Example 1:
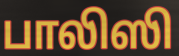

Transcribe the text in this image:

பாலிஸி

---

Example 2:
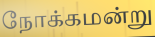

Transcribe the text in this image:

நோக்கமன்று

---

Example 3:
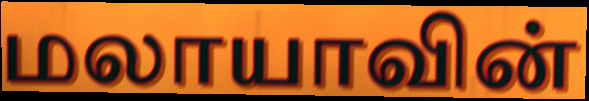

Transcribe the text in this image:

மலாயாவின்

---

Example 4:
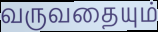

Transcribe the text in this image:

வருவதையும்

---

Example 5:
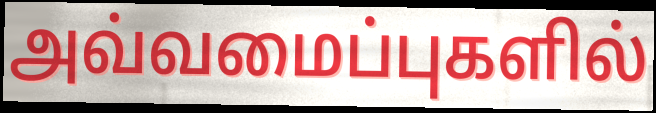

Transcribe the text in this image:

அவ்வமைப்புகளில்